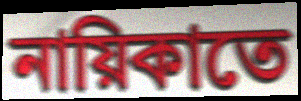
নায়িকাতে